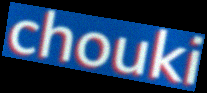
chouki